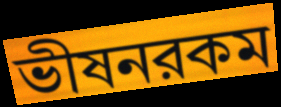
ভীষনরকম